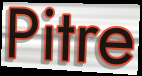
Pitre